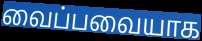
வைப்பவையாக